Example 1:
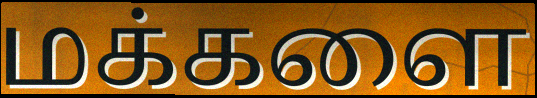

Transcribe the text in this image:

மக்களை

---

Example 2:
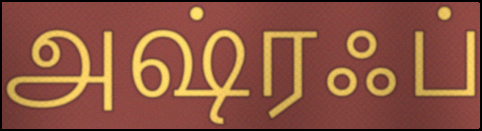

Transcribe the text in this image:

அஷ்ரஃப்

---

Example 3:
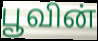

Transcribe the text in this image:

பூவின்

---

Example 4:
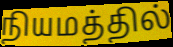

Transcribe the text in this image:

நியமத்தில்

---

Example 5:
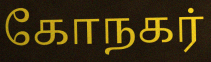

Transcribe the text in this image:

கோநகர்